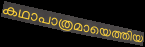
കഥാപാത്രമായെത്തിയ